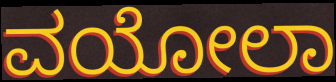
ವಯೋಲಾ